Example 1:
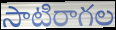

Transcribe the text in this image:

సాటిరాగల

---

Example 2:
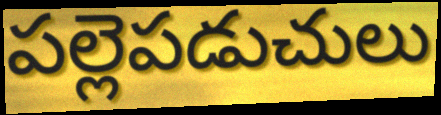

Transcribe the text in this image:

పల్లెపడుచులు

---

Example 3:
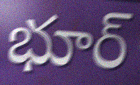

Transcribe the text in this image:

భూర్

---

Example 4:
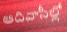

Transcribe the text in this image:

ఆదివాసీల్లో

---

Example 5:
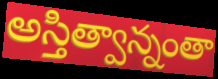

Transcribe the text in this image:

అస్తిత్వాన్నంతా